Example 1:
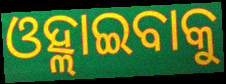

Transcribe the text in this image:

ଓହ୍ଲାଇବାକୁ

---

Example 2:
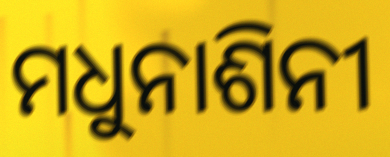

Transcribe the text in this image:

ମଧୁନାଶିନୀ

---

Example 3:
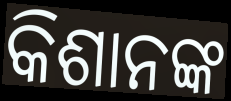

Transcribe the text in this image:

କିଶାନଙ୍କ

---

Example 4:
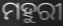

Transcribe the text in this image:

ମହୁରୀ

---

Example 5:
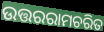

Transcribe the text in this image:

ଉତ୍ତରରାମଚରିତ